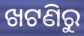
ଖଟଣିରୁ